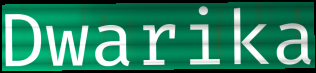
Dwarika